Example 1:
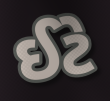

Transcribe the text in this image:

ઈટે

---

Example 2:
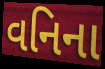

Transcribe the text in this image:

વનિના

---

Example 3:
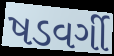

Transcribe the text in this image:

ષડવર્ગી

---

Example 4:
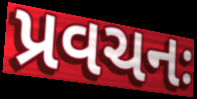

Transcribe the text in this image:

પ્રવચનઃ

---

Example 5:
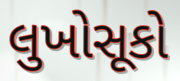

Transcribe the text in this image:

લુખોસૂકો